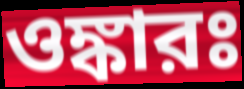
ওঙ্কারঃ